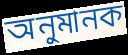
অনুমানক